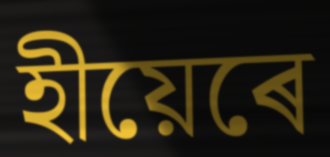
হীয়েৰে